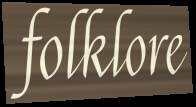
folklore